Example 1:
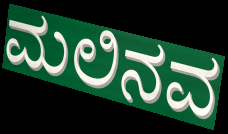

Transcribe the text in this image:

ಮಲಿನವ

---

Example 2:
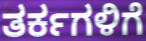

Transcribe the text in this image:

ತರ್ಕಗಳಿಗೆ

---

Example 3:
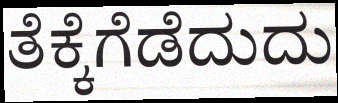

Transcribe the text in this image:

ತೆಕ್ಕೆಗೆಡೆದುದು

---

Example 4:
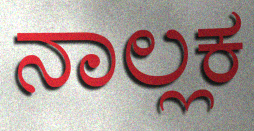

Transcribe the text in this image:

ನಾಲ್ಲಕ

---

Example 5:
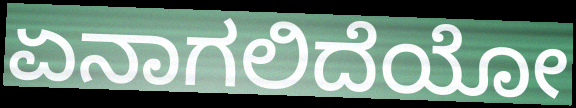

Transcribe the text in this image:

ಏನಾಗಲಿದೆಯೋ